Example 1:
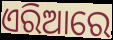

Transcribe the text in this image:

ଏରିଆରେ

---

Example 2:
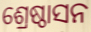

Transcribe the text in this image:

ଶ୍ରେଷ୍ଠାସନ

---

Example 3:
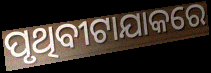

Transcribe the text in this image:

ପୃଥିବୀଟାଯାକରେ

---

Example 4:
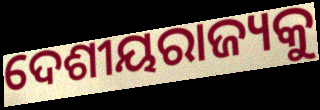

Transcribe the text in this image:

ଦେଶୀୟରାଜ୍ୟକୁ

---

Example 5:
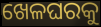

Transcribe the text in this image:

ଖେଳଘରକୁ